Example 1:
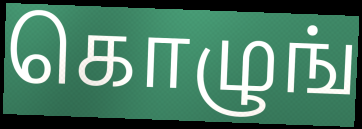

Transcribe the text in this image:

கொழுங்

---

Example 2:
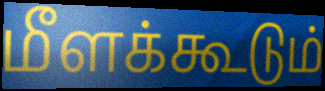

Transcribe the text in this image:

மீளக்கூடும்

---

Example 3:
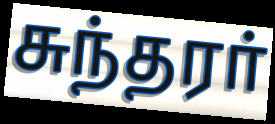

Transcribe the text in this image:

சுந்தரர்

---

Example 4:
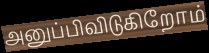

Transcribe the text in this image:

அனுப்பிவிடுகிறோம்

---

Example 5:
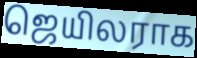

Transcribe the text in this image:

ஜெயிலராக